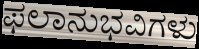
ಫಲಾನುಭವಿಗಳು